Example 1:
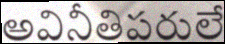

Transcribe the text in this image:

అవినీతిపరులే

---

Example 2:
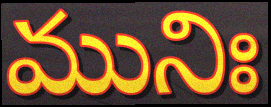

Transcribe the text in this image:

మునిః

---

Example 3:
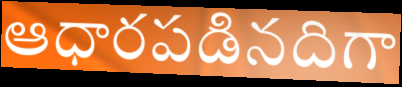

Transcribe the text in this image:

ఆధారపడినదిగా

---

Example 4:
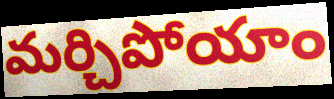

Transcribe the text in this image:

మర్చిపోయాం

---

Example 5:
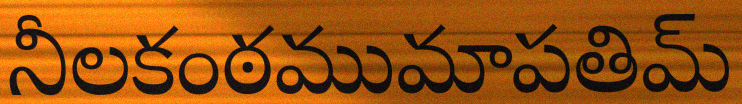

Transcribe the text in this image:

నీలకంఠముమాపతిమ్